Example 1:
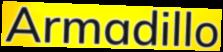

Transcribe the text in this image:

Armadillo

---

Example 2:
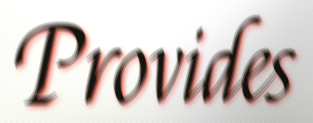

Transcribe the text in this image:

Provides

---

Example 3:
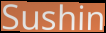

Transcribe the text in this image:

Sushin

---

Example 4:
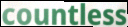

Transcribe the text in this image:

countless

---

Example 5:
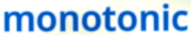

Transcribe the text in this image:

monotonic